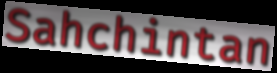
Sahchintan